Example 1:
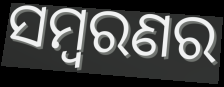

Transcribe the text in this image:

ସମ୍ବରଣର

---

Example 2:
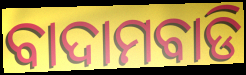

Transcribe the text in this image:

ବାଦାମବାଡି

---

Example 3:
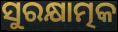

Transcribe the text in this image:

ସୁରକ୍ଷାତ୍ମକ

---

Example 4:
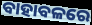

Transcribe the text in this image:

ବାହାବଳରେ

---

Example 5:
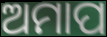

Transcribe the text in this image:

ଅମାପ